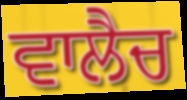
ਵਾਲੈਚ